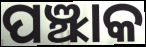
ପଞ୍ଝାକ